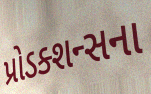
પ્રોડક્શન્સના